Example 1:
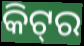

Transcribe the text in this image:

କିଟ୍‌ର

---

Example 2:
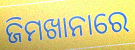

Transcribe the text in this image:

ଜିମଖାନାରେ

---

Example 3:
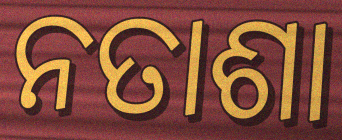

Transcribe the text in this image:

ନତାଶା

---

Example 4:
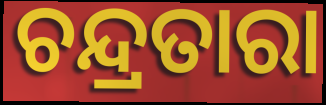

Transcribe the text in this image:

ଚନ୍ଦ୍ରତାରା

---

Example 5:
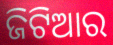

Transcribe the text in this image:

ଜିଟିଆର